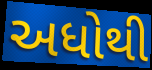
અધોથી